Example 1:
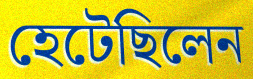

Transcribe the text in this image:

হেটেছিলেন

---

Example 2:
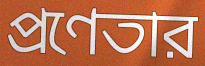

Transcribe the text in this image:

প্রণেতার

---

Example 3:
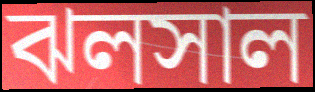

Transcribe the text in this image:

ঝলসাল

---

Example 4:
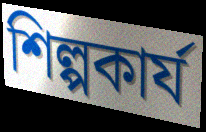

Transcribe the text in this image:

শিল্পকার্য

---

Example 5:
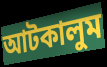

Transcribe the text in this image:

আটকালুম